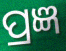
ପ୍ରଜ୍ଞ